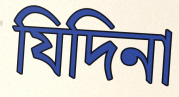
যিদিনা